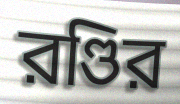
রণ্ডির